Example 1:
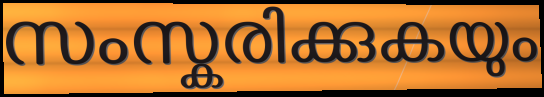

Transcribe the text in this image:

സംസ്കരിക്കുകയും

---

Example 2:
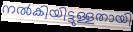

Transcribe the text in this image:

നൽകിയിട്ടുള്ളതായി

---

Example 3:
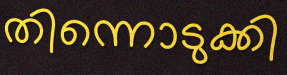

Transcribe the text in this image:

തിന്നൊടുക്കി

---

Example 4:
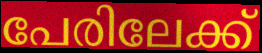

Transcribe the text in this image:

പേരിലേക്ക്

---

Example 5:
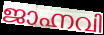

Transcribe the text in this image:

ജാഹ്നവി